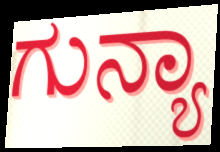
ಗುನ್ಯಾ